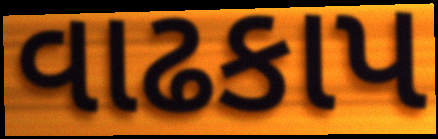
વાઢકાપ